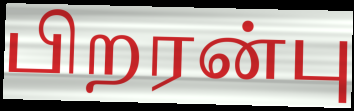
பிறரன்பு